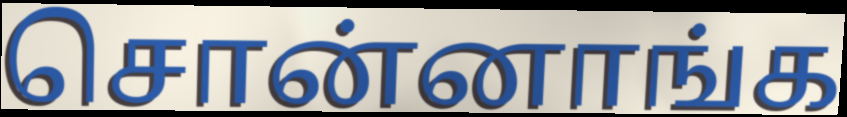
சொன்னாங்க